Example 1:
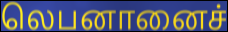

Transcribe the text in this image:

லெபனானைச்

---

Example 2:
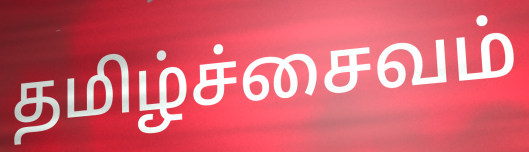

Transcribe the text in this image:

தமிழ்ச்சைவம்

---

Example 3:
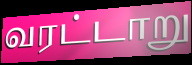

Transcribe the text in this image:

வரட்டாறு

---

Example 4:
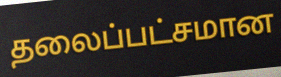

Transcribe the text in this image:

தலைப்பட்சமான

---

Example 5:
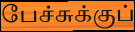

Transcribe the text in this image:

பேச்சுக்குப்